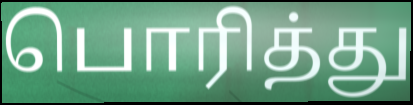
பொரித்து